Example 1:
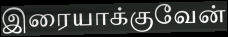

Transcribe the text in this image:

இரையாக்குவேன்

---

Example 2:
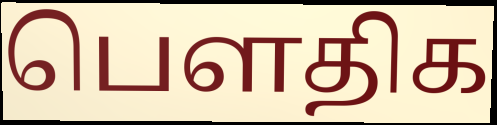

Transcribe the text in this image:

பௌதிக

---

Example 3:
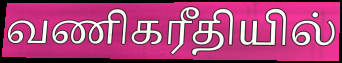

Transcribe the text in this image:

வணிகரீதியில்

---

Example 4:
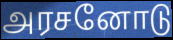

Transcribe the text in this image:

அரசனோடு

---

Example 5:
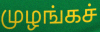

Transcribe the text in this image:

முழங்கச்